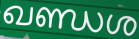
ഖണ്ഡശ